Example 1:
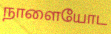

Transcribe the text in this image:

நாளையோட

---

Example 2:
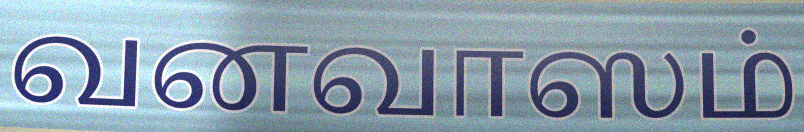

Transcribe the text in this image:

வனவாஸம்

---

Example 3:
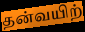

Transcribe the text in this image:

தன்வயிற்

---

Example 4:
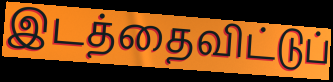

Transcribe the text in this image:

இடத்தைவிட்டுப்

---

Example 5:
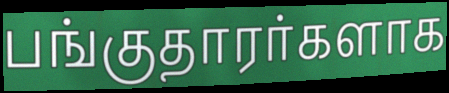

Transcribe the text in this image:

பங்குதாரர்களாக